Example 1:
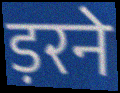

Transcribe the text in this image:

ड़रने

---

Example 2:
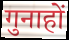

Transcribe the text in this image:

गुनाहों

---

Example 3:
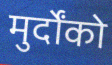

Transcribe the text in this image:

मुर्दोंको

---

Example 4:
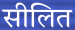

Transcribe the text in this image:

सीलित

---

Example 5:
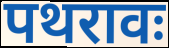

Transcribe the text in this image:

पथरावः